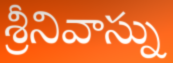
శ్రీనివాస్ను